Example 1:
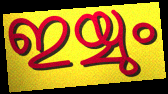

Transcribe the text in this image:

ഇയ്യും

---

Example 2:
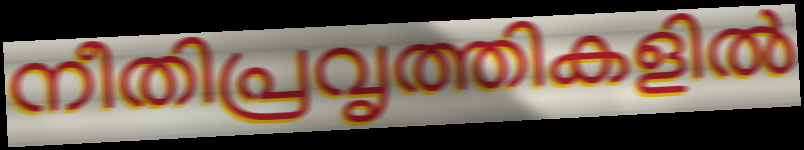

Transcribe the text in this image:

നീതിപ്രവൃത്തികളിൽ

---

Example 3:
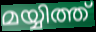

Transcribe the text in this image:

മയ്യിത്ത്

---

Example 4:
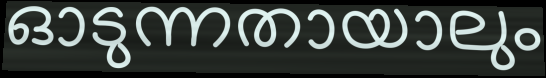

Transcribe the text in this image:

ഓടുന്നതായാലും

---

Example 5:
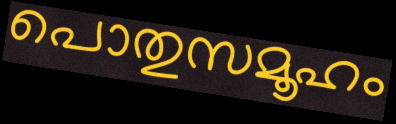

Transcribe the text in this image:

പൊതുസമൂഹം